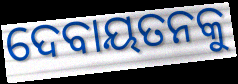
ଦେବାୟତନକୁ